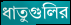
ধাতুগুলির